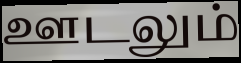
ஊடலும்